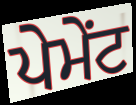
ਪੇਮੇਂਟ